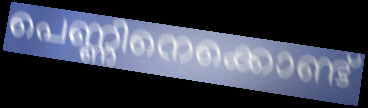
പെണ്ണിനെക്കൊണ്ട്